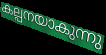
കല്പനയാകുന്നു